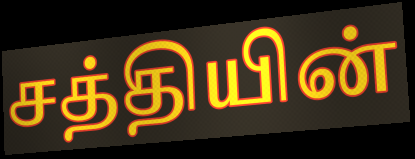
சத்தியின்